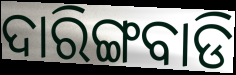
ଦାରିଙ୍ଗବାଡି